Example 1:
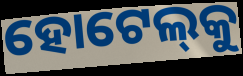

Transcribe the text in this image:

ହୋଟେଲ୍‌କୁ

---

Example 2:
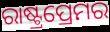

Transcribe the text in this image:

ରାଷ୍ଟ୍ରପ୍ରେମର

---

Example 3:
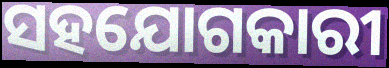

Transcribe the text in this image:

ସହଯୋଗକାରୀ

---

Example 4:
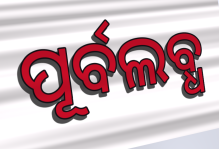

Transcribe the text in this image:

ପୂର୍ବଲବ୍ଧ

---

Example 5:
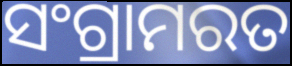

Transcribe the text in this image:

ସଂଗ୍ରାମରତ